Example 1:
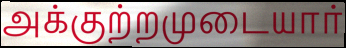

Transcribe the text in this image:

அக்குற்றமுடையார்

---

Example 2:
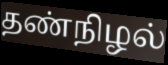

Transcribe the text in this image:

தண்நிழல்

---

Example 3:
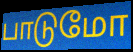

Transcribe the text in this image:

பாடுமோ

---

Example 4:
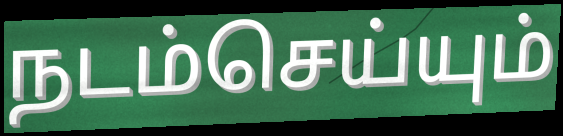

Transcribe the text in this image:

நடம்செய்யும்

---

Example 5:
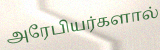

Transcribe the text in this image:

அரேபியர்களால்